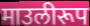
माउलीरूप